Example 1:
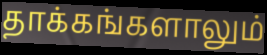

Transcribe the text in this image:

தாக்கங்களாலும்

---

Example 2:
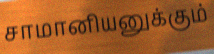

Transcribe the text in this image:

சாமானியனுக்கும்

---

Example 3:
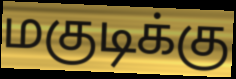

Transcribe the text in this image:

மகுடிக்கு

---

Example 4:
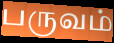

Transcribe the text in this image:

பருவம்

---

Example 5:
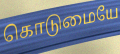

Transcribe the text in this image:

கொடுமையே